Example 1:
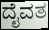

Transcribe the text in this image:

ದೈವತ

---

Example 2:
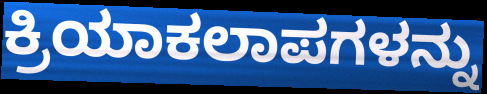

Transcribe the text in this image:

ಕ್ರಿಯಾಕಲಾಪಗಳನ್ನು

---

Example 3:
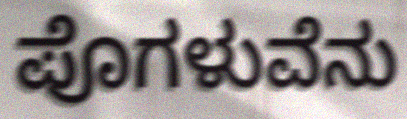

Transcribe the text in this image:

ಪೊಗಳುವೆನು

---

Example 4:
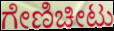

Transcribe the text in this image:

ಗೇಣಿಚೀಟು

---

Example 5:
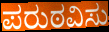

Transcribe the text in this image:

ಪರುಠವಿಸು